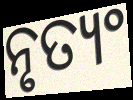
ନୃତ୍ୟଂ